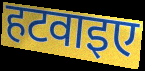
हटवाइए